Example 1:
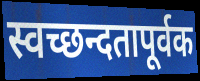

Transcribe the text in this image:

स्वच्छन्दतापूर्वक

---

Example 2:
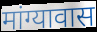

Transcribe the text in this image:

मांग्यावास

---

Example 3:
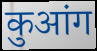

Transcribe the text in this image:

कुआंग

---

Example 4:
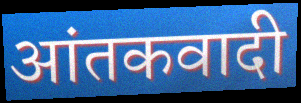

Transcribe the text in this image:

आंतकवादी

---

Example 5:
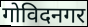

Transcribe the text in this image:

गोविदनगर